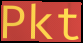
Pkt